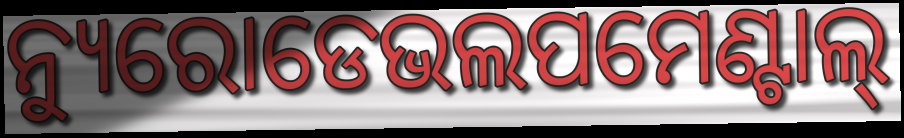
ନ୍ୟୁରୋଡେଭଲପମେଣ୍ଟାଲ୍